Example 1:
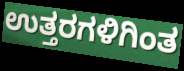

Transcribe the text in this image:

ಉತ್ತರಗಳಿಗಿಂತ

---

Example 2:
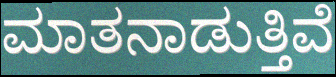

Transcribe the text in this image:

ಮಾತನಾಡುತ್ತಿವೆ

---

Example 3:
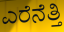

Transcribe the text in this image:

ಎರೆನೆತ್ತಿ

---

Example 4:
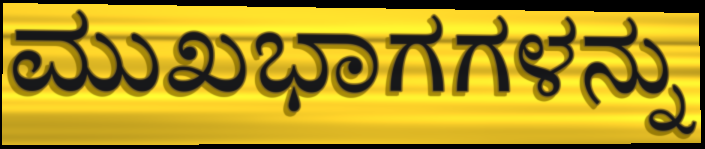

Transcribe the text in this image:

ಮುಖಭಾಗಗಳನ್ನು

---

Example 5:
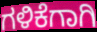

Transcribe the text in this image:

ಗಳಿಕೆಗಾಗಿ